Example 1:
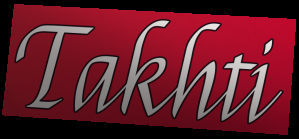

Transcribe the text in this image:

Takhti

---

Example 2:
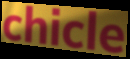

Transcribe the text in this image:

chicle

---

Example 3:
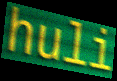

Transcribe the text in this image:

huli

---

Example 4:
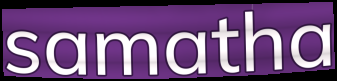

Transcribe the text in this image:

samatha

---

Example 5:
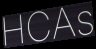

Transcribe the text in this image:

HCAs